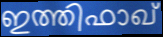
ഇത്തിഫാഖ്